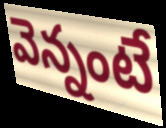
వెన్నంటే